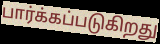
பார்க்கப்படுகிறது